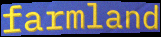
farmland